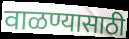
वाळण्यासाठी